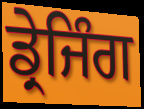
ਡ੍ਰੇਜਿੰਗ